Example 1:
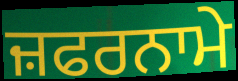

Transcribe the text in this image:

ਜ਼ਫਰਨਾਮੇ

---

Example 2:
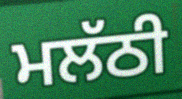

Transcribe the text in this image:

ਮਲੱਠੀ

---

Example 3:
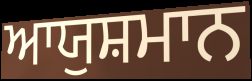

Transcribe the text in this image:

ਆਯੁਸ਼ਮਾਨ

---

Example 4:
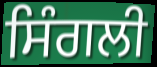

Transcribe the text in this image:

ਸਿੰਗਲੀ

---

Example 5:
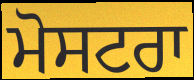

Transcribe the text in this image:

ਮੋਸਟਰਾ